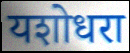
यशोधरा